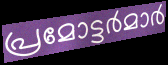
പ്രമോട്ടർമാർ